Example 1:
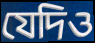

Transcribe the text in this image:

যেদিও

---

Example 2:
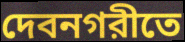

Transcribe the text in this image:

দেবনগরীতে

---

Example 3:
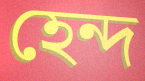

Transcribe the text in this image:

হেন্দ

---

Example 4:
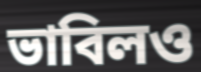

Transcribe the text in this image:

ভাবিলও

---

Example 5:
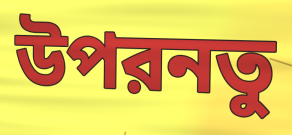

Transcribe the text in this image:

উপরনতু